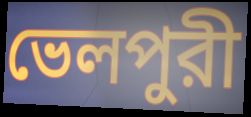
ভেলপুরী